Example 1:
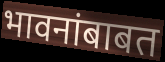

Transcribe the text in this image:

भावनांबाबत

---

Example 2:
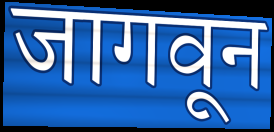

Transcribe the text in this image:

जागवून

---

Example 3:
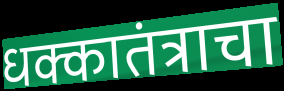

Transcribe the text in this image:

धक्कातंत्राचा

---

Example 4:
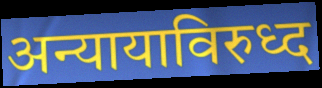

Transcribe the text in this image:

अन्यायाविरुध्द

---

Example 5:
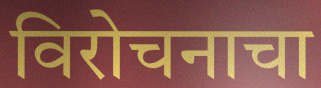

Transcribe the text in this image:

विरोचनाचा